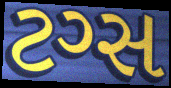
ટગ્સ